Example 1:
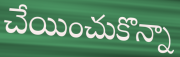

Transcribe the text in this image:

చేయించుకొన్నా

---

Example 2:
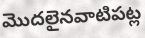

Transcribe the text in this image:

మొదలైనవాటిపట్ల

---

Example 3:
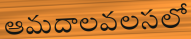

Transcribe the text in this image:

ఆమదాలవలసలో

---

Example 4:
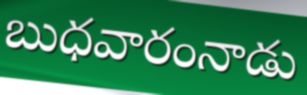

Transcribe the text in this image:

బుధవారంనాడు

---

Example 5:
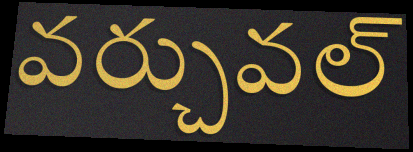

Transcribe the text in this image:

వర్చువల్